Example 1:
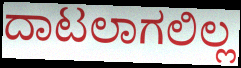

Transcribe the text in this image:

ದಾಟಲಾಗಲಿಲ್ಲ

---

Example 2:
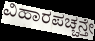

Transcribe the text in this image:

ವಿಹಾರಪಚ್ಚನ್ತೇ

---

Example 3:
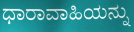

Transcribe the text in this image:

ಧಾರಾವಾಹಿಯನ್ನು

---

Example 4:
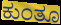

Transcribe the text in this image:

ಕುಂತೂ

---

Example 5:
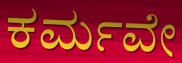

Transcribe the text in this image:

ಕರ್ಮವೇ